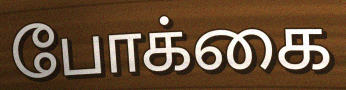
போக்கை